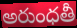
అరుంధతీ